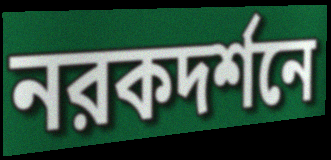
নরকদর্শনে